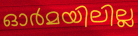
ഓർമയിലില്ല